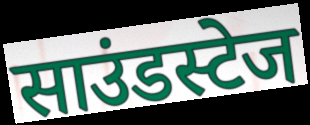
साउंडस्टेज